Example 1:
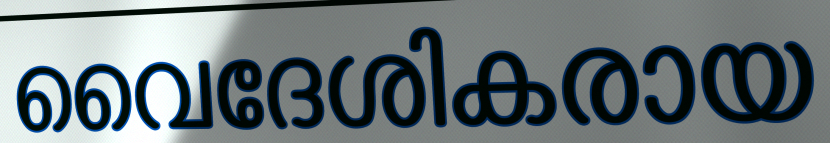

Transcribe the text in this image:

വൈദേശികരായ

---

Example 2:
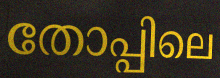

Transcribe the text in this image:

തോപ്പിലെ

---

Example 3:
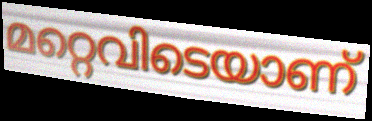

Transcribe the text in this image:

മറ്റെവിടെയാണ്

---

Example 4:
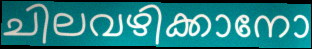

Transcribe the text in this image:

ചിലവഴിക്കാനോ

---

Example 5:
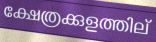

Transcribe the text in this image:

ക്ഷേത്രക്കുളത്തില്